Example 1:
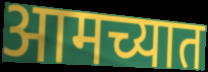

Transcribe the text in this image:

आमच्यात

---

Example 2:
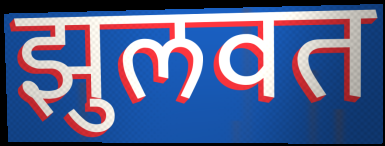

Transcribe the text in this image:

झुलवत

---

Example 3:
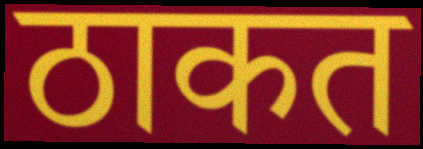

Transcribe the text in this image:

ठाकत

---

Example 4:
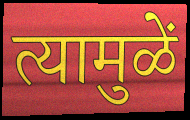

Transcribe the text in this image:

त्यामुळें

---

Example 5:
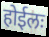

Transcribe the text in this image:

होईलः